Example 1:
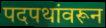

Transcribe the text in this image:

पदपथांवरून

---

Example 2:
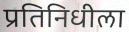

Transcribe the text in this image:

प्रतिनिधीला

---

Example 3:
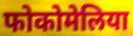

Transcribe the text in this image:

फोकोमेलिया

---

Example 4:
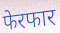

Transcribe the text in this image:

फेरफार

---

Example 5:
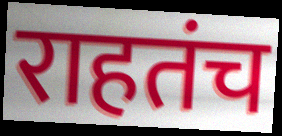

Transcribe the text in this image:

राहतंच